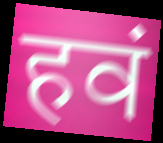
हवं